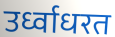
उर्ध्वाधरत